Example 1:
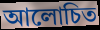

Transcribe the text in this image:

আলোচিত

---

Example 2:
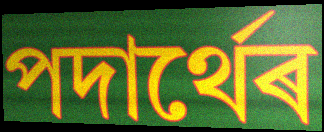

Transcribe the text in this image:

পদাৰ্থেৰ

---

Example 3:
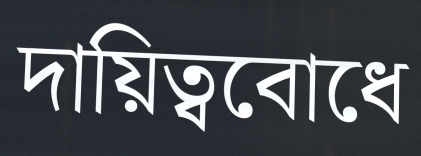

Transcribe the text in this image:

দায়িত্ববোধে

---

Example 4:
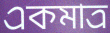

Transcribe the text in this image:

একমাত্ৰ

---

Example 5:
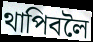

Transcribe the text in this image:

থাপিবলৈ